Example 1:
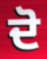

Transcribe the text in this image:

ਦੋ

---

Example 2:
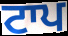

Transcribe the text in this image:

ਟਾਪ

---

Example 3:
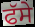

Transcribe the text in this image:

ਫੱਸੇ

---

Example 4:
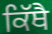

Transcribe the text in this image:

ਕਿੱਥੈ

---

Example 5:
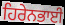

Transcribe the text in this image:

ਹਿਰੇਨਭਾਈ